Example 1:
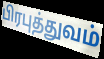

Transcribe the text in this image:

பிரபுத்துவம்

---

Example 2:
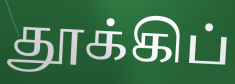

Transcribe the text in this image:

தூக்கிப்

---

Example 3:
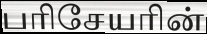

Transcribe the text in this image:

பரிசேயரின்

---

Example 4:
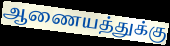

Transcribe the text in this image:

ஆணையத்துக்கு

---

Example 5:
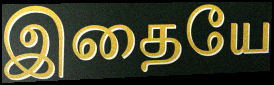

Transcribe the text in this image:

இதையே